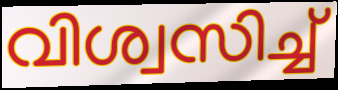
വിശ്വസിച്ച്